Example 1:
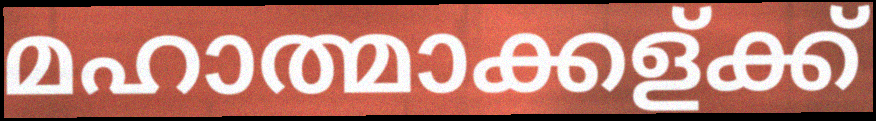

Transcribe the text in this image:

മഹാത്മാക്കള്ക്ക്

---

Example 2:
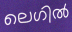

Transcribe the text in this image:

ലെഗിൽ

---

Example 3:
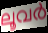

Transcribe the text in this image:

ലൂവർ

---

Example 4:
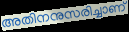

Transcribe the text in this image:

അതിനനുസരിച്ചാണ്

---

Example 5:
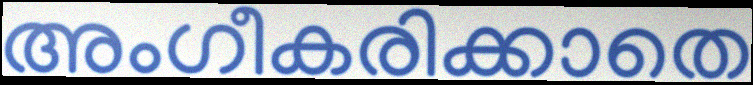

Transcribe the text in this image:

അംഗീകരിക്കാതെ